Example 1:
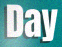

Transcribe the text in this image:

Day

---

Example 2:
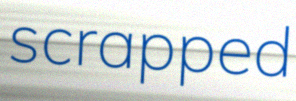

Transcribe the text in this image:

scrapped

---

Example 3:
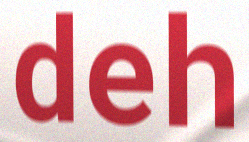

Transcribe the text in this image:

deh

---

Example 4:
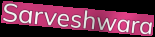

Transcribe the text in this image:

Sarveshwara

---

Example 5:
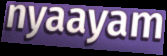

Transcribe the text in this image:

nyaayam